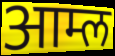
आम्ल